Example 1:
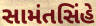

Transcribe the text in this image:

સામંતસિંહે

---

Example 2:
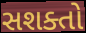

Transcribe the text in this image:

સશક્તો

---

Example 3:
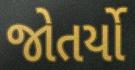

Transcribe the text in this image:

જોતર્યો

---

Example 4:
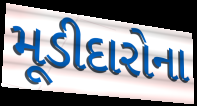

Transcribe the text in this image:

મૂડીદારોના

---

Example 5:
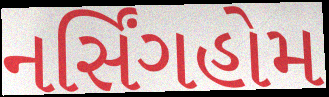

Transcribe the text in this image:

નર્સિંગહોમ